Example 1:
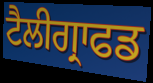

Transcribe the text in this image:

ਟੈਲੀਗ੍ਰਾਫਡ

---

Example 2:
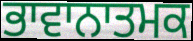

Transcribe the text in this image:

ਭਾਵਾਨਾਤਮਕ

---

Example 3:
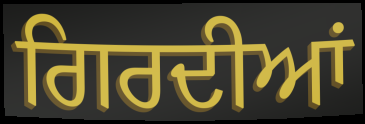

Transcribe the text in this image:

ਗਿਰਦੀਆਂ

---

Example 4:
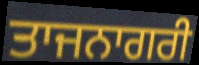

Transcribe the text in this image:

ਤਾਜਨਾਗਰੀ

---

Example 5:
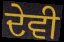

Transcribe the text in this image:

ਦੇਵੀ